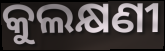
କୁଲକ୍ଷଣୀ